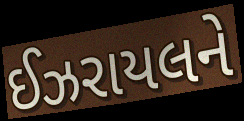
ઈઝરાયલને